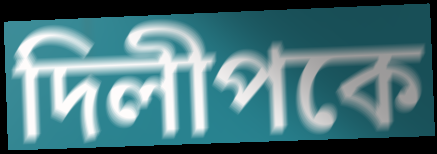
দিলীপকে